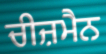
ਚੀਜ਼ਮੈਨ